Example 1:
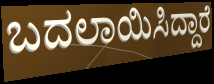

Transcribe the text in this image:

ಬದಲಾಯಿಸಿದ್ದಾರೆ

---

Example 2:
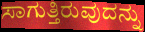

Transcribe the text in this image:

ಸಾಗುತ್ತಿರುವುದನ್ನು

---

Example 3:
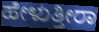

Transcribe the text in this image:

ಹೇಳುತ್ತೀರಾ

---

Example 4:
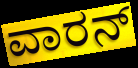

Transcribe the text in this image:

ವಾರನ್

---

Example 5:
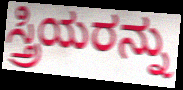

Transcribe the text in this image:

ಸ್ತ್ರಿಯರನ್ನು